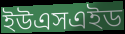
ইউএসএইড